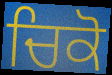
ਚਿਕੋ